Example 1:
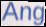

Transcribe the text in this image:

Ang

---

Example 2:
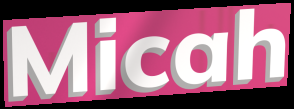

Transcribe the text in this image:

Micah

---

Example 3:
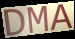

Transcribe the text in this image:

DMA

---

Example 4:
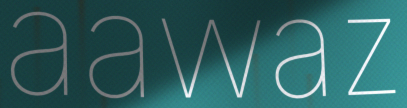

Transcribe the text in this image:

aawaz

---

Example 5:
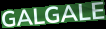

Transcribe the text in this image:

GALGALE